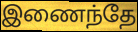
இணைந்தே